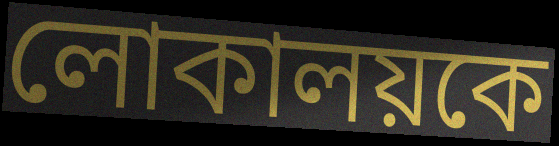
লোকালয়কে